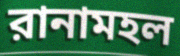
রানামহল